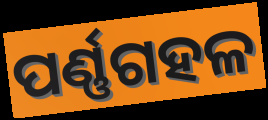
ପର୍ଣ୍ଣଗହଳ